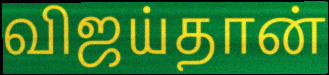
விஜய்தான்